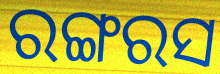
ରଙ୍ଗରସ